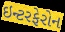
ઇન્ટરફેરોન